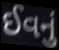
ઈવનું